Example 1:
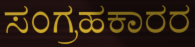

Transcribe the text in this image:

ಸಂಗ್ರಹಕಾರರ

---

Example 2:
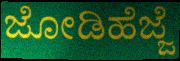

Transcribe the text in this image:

ಜೋಡಿಹೆಜ್ಜೆ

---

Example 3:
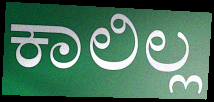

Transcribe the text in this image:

ಕಾಲಿಲ್ಲ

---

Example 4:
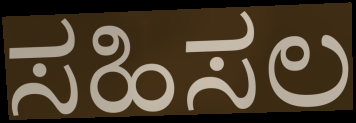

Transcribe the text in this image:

ಸಹಿಸಲ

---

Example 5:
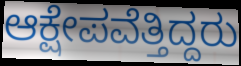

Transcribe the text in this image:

ಆಕ್ಷೇಪವೆತ್ತಿದ್ದರು